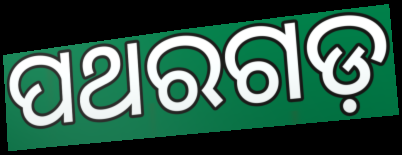
ପଥରଗଡ଼